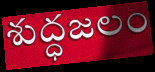
శుద్ధజలం